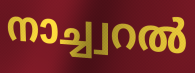
നാച്ച്വറൽ